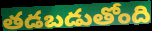
తడబడుతోంది